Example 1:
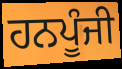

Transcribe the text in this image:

ਹਨਪੂੰਜੀ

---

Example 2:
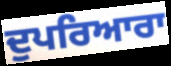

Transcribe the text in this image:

ਦੁਪਰਿਆਰਾ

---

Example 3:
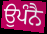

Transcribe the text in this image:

ਉਪੰਨੈ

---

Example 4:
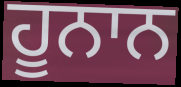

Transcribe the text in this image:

ਹੂਨਾਨ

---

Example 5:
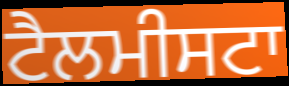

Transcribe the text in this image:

ਟੈਲਮੀਸਟਾ